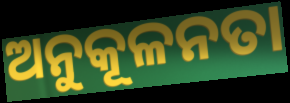
ଅନୁକୂଳନତା